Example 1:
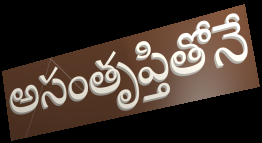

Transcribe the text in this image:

అసంతృప్తితోనే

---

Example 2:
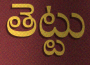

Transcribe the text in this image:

తెట్టు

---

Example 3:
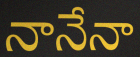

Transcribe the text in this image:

నానేనా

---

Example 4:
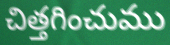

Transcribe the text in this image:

చిత్తగించుము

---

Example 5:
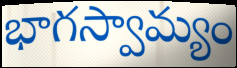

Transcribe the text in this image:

భాగస్వామ్యం